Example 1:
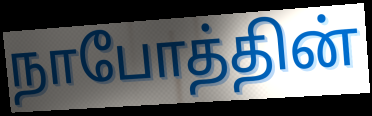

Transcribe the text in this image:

நாபோத்தின்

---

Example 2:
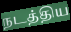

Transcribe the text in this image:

நடத்திய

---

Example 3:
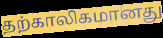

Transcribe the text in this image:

தற்காலிகமானது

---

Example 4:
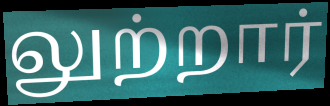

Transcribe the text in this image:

லுற்றார்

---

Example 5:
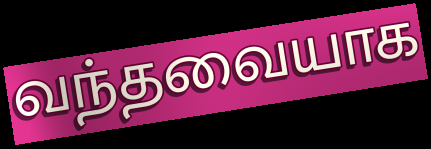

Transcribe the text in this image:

வந்தவையாக